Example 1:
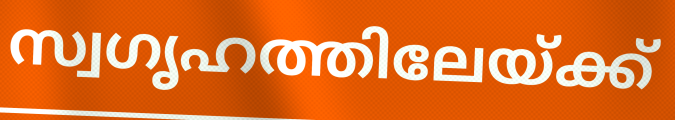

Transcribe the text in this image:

സ്വഗൃഹത്തിലേയ്ക്ക്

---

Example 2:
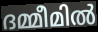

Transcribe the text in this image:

ദമ്മീമിൽ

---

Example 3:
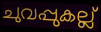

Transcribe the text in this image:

ചുവപ്പുകല്ല്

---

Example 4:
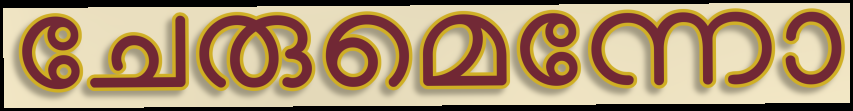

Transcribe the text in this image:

ചേരുമെന്നോ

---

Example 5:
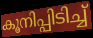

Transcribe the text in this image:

കൂനിപ്പിടിച്ച്